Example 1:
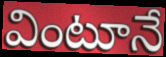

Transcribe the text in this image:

వింటూనే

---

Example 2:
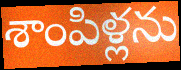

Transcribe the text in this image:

శాంపిళ్లను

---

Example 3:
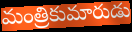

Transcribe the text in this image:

మంత్రికుమారుడు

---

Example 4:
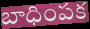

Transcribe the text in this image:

బాధింపక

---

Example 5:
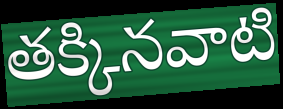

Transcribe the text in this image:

తక్కినవాటి